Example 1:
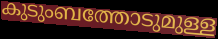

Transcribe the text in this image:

കുടുംബത്തോടുമുള്ള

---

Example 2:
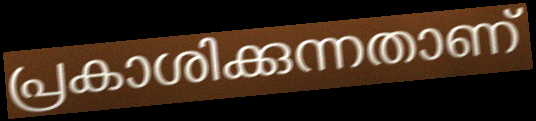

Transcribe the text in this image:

പ്രകാശിക്കുന്നതാണ്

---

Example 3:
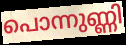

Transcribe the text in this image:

പൊന്നുണ്ണി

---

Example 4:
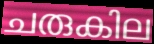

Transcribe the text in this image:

ചരുകില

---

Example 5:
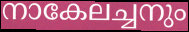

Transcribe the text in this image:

നാകേലച്ചനും